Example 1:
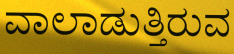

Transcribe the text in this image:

ವಾಲಾಡುತ್ತಿರುವ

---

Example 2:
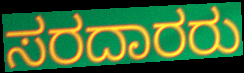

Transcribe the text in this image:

ಸರದಾರರು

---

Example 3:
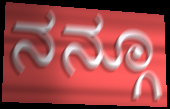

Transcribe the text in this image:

ನನ್ಗೂ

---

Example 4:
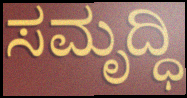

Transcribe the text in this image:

ಸಮೃದ್ಧಿ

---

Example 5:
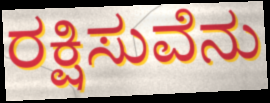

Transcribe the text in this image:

ರಕ್ಷಿಸುವೆನು